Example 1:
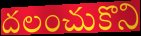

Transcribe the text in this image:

దలంచుకొని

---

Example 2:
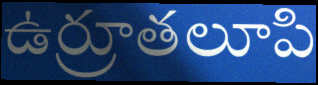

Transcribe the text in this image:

ఉర్రూతలూపి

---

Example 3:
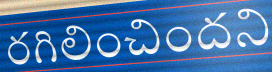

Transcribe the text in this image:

రగిలించిందని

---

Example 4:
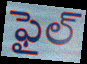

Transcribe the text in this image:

ఫైల్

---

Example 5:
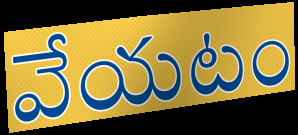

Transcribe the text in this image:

వేయటం